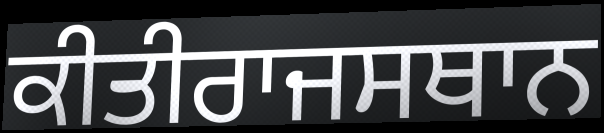
ਕੀਤੀਰਾਜਸਥਾਨ